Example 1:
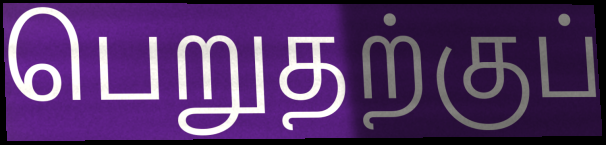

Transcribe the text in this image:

பெறுதற்குப்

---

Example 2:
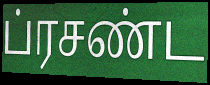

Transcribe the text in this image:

ப்ரசண்ட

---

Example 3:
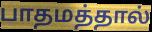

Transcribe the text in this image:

பாதமத்தால்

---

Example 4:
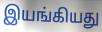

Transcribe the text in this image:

இயங்கியது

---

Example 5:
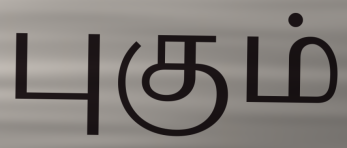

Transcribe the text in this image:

புகும்